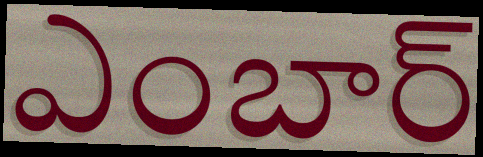
ఎంబార్